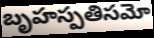
బృహస్పతిసమో